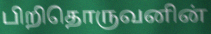
பிறிதொருவனின்